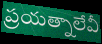
ప్రయత్నాలేవీ